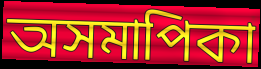
অসমাপিকা